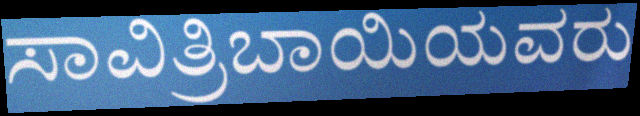
ಸಾವಿತ್ರಿಬಾಯಿಯವರು